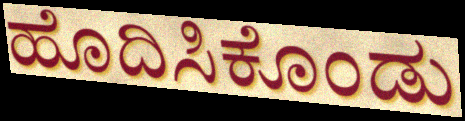
ಹೊದಿಸಿಕೊಂಡು